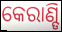
କେରାଣ୍ଡି